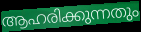
ആഹരിക്കുന്നതും